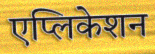
एप्लिकेशन